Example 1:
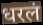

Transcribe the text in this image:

धरलं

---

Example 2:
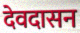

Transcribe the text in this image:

देवदासन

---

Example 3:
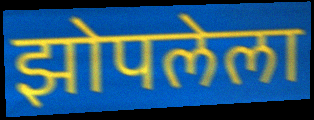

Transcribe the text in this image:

झोपलेला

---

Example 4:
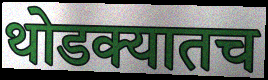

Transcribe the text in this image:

थोडक्यातच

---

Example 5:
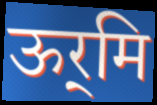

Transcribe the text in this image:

ऊर्मि